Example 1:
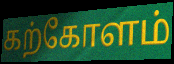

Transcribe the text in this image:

கற்கோளம்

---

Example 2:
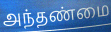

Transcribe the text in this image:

அந்தண்மை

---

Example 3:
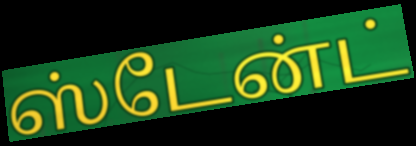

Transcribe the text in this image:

ஸ்டேன்ட்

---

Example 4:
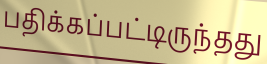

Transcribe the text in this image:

பதிக்கப்பட்டிருந்தது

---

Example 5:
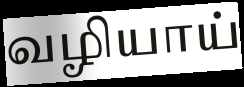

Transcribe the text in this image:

வழியாய்